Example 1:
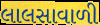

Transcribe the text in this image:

લાલસાવાળી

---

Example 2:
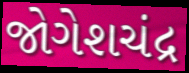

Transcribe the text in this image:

જોગેશચંદ્ર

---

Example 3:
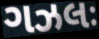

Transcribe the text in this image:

ગઝલઃ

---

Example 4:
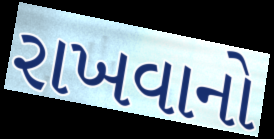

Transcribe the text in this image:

રાખવાનો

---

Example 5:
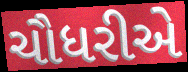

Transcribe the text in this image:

ચૌધરીએ